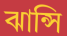
ঝান্সি